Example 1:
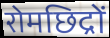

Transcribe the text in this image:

रोमछिद्रों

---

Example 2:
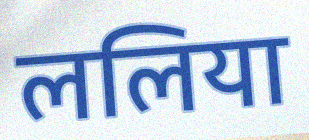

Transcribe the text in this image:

ललिया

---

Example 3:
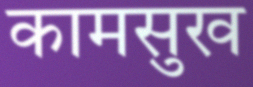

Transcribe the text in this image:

कामसुख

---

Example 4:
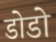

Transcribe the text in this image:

डोडो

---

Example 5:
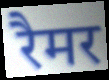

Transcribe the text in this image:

रैमर